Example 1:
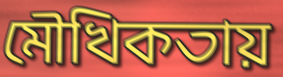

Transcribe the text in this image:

মৌখিকতায়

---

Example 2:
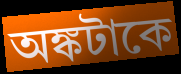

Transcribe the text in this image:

অঙ্কটাকে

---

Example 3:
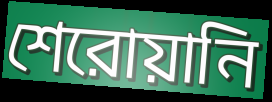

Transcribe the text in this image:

শেরোয়ানি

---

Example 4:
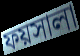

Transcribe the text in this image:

ফয়সালা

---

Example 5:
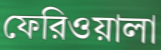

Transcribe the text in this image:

ফেরিওয়ালা